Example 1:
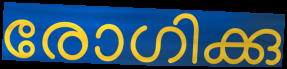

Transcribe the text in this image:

രോഗിക്കു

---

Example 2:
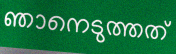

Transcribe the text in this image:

ഞാനെടുത്തത്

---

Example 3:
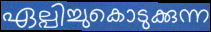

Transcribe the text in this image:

ഏല്പിച്ചുകൊടുക്കുന്ന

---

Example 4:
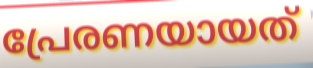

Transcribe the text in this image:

പ്രേരണയായത്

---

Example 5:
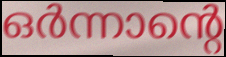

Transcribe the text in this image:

ഒർന്നാന്റെ